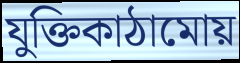
যুক্তিকাঠামোয়